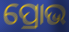
ପ୍ରୋଭ